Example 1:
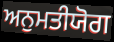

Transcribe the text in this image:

ਅਨੁਮਤੀਯੋਗ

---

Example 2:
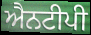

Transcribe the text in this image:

ਐਨਟੀਪੀ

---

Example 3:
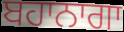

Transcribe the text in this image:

ਬਹਾਨਾਗਾ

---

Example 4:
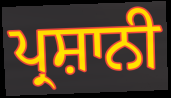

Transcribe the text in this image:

ਪ੍ਰਸ਼ਾਨੀ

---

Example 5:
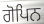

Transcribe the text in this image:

ਗੋਪਿਨ